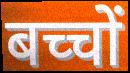
बच्चों